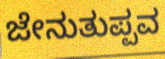
ಜೇನುತುಪ್ಪವ